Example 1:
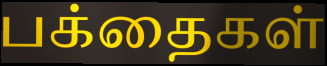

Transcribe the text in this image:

பக்தைகள்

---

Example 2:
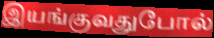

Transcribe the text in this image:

இயங்குவதுபோல்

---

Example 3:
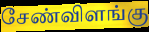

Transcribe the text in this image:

சேண்விளங்கு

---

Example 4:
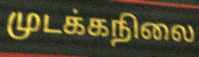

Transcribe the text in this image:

முடக்கநிலை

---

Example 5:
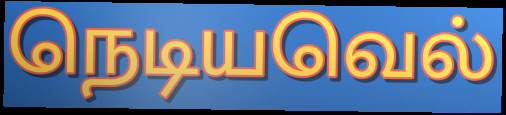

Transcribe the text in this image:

நெடியவெல்